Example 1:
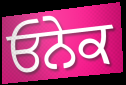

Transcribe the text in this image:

ਓਨੇਕ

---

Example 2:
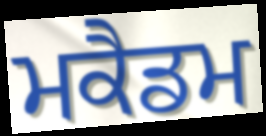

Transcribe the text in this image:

ਮਕੈਡਮ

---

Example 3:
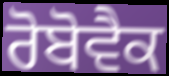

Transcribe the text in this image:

ਰੋਬੋਵੈਕ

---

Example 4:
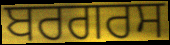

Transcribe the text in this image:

ਬਰਗਰਸ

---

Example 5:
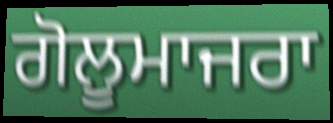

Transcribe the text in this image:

ਗੋਲੂਮਾਜਰਾ